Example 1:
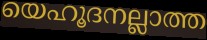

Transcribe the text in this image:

യെഹൂദനല്ലാത്ത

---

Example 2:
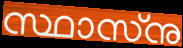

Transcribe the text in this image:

സ്ഥാസ്നു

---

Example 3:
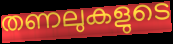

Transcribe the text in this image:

തണലുകളുടെ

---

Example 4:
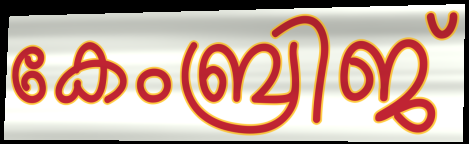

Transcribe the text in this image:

കേംബ്രിജ്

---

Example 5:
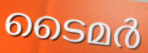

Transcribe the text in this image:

ടൈമർ